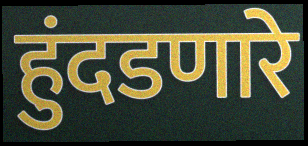
हुंदडणारे